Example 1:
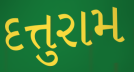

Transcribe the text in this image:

દત્તુરામ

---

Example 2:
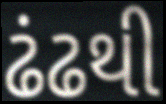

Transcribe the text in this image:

ઢંઢથી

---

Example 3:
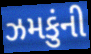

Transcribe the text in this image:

ઝમકુંની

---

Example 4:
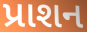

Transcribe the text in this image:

પ્રાશન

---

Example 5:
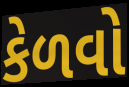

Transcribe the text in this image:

કેળવો